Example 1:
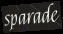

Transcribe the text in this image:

sparade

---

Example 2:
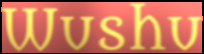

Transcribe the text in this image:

Wushu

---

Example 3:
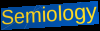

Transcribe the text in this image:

Semiology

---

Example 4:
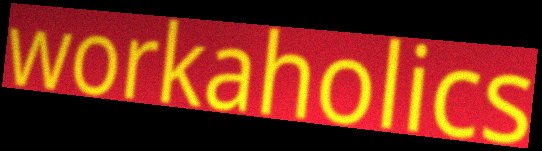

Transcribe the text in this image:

workaholics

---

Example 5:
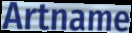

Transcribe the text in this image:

Artname